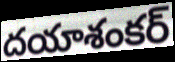
దయాశంకర్